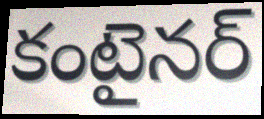
కంటైనర్